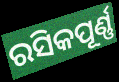
ରସିକପୂର୍ଣ୍ଣ